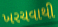
ખરચવાથી